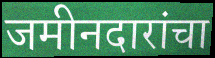
जमीनदारांचा